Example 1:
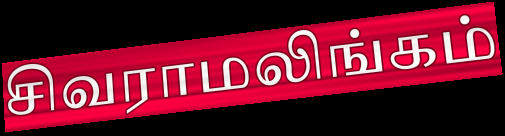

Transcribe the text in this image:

சிவராமலிங்கம்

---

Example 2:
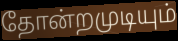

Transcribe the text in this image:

தோன்றமுடியும்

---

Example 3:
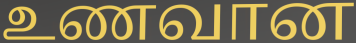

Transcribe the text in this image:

உணவான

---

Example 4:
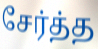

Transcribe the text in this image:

சேர்த்த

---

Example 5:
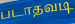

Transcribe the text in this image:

படாதவடி